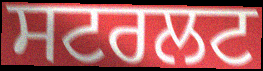
ਸਟਰਲਟ